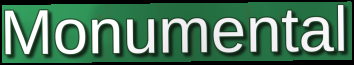
Monumental